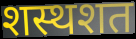
शस्थशत